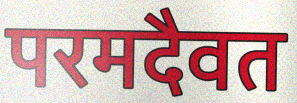
परमदैवत